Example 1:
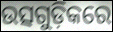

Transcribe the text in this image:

ଉତ୍ସଗୁଡ଼ିକରେ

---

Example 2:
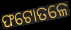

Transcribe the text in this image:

ଫଟୋତଳେ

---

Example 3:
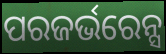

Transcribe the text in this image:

ପରଜର୍ଭରେନ୍ସ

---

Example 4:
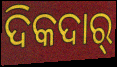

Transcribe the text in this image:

ଦିକଦାର୍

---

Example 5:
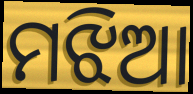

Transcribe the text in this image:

ମଝିଆ